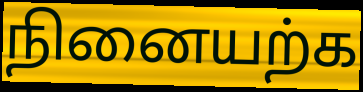
நினையற்க